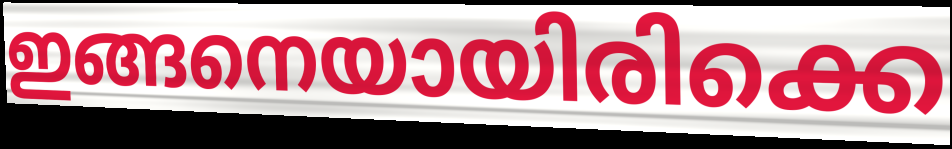
ഇങ്ങനെയായിരിക്കെ